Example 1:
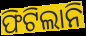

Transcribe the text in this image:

ଫିଟିଲାନି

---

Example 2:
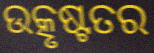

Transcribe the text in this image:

ଉତ୍କୃଷ୍ଟତର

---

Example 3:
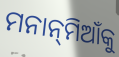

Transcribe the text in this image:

ମନାନ୍‌ମିଆଁକୁ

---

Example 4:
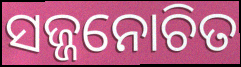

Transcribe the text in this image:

ସଜ୍ଜନୋଚିତ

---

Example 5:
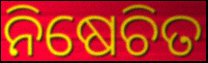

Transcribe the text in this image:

ନିଷେଚିତ